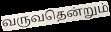
வருவதென்றும்